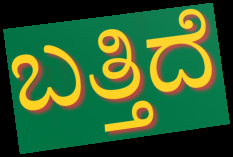
ಬತ್ತಿದೆ